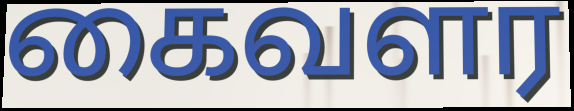
கைவளர